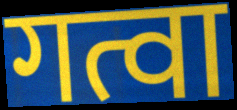
गत्वा